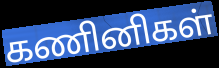
கணினிகள்